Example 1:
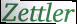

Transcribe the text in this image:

Zettler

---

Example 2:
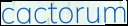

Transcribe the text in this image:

cactorum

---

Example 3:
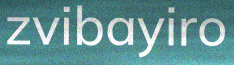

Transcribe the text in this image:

zvibayiro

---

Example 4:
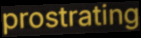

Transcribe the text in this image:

prostrating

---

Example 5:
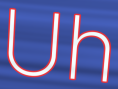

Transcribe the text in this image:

Uh